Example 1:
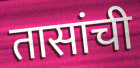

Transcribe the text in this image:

तासांची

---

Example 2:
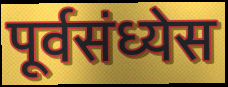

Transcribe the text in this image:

पूर्वसंध्येस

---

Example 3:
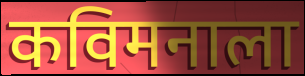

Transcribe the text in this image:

कविमनाला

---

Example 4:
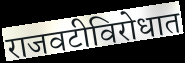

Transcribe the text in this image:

राजवटीविरोधात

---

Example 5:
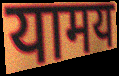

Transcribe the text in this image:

यामय